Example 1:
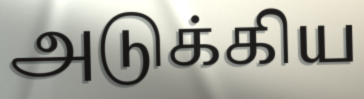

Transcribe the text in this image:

அடுக்கிய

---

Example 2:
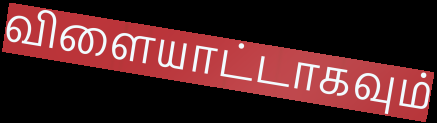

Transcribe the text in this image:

விளையாட்டாகவும்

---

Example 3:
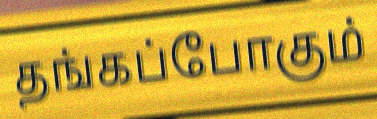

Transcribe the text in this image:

தங்கப்போகும்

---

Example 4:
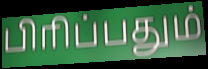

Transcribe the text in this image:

பிரிப்பதும்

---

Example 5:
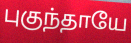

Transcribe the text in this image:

புகுந்தாயே